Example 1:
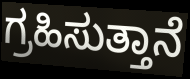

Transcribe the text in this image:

ಗ್ರಹಿಸುತ್ತಾನೆ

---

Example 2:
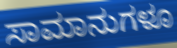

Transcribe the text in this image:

ಸಾಮಾನುಗಳೂ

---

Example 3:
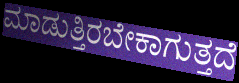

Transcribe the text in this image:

ಮಾಡುತ್ತಿರಬೇಕಾಗುತ್ತದೆ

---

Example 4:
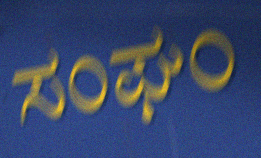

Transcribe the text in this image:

ಸಂಘಂ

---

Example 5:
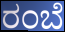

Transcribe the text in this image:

ರಂಬೆ